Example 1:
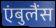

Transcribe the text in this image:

एंबुलैंस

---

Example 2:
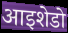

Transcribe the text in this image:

आइशेडो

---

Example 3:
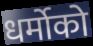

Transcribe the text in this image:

धर्मोको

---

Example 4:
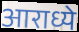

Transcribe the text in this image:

आराध्ये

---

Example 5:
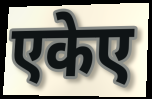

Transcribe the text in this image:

एकेए